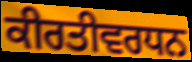
ਕੀਰਤੀਵਰਧਨ